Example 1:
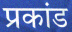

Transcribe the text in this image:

प्रकांड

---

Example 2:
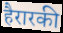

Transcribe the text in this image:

हैरारकी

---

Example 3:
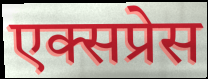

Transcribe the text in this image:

एक्‍सप्रेस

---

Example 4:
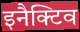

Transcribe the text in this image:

इनैक्टिव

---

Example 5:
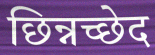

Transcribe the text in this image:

छिन्नच्छेद